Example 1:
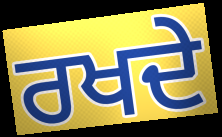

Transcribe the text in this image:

ਰਖਦੇ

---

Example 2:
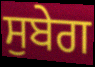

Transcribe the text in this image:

ਸੁਬੇਗ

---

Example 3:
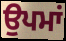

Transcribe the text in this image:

ਉਪਮਾਂ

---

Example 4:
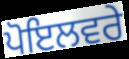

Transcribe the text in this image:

ਪੋਇਲਵਰੇ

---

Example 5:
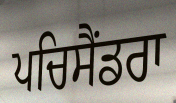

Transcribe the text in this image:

ਪਚਿਸੈਂਡਰਾ